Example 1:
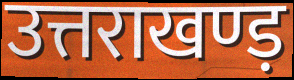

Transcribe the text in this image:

उत्तराखण्ड़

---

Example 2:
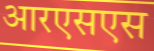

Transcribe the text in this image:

आरएसएस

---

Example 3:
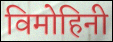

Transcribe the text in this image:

विमोहिनी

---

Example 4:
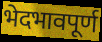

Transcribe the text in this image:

भेदभावपूर्ण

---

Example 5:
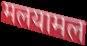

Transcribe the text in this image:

मलयामल